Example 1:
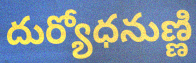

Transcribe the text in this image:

దుర్యోధనుణ్ణి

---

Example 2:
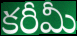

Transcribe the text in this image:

కరీమీ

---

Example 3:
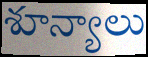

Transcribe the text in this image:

శూన్యాలు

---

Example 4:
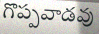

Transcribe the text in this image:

గొప్పవాడవు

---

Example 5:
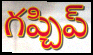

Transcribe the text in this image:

గప్చిప్